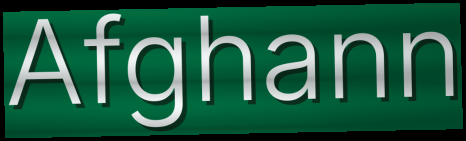
Afghann